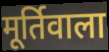
मूर्तिवाला